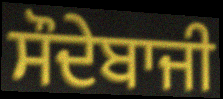
ਸੌਦੇਬਾਜੀ